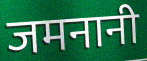
जमनानी